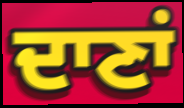
ਦਾਣਾਂ